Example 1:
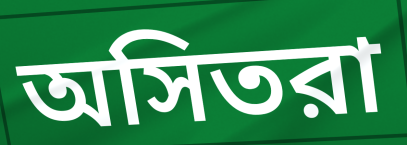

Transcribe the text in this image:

অসিতরা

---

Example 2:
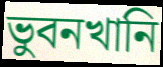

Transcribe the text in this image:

ভুবনখানি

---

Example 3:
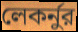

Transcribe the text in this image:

লেকর্নুর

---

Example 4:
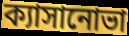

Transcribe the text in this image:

ক্যাসানোভা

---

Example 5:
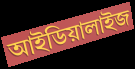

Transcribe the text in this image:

আইডিয়ালাইজ